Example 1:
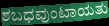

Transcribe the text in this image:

ಶಬಧವುಂಟಾಯತು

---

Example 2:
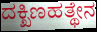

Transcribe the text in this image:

ದಕ್ಖಿಣಹತ್ಥೇನ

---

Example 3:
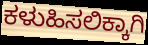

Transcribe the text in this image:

ಕಳುಹಿಸಲಿಕ್ಕಾಗಿ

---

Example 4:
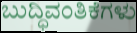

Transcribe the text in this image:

ಬುದ್ಧಿವಂತಿಕೆಗಳು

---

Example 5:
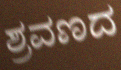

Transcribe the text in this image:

ಶ್ರವಣದ